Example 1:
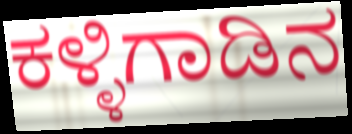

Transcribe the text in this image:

ಕಳ್ಳಿಗಾಡಿನ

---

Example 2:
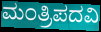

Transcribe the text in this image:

ಮಂತ್ರಿಪದವಿ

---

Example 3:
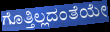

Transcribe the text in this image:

ಗೊತ್ತಿಲ್ಲದಂತೆಯೇ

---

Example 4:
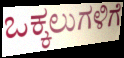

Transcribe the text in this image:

ಒಕ್ಕಲುಗಳಿಗೆ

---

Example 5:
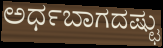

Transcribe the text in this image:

ಅರ್ಧಬಾಗದಷ್ಟು